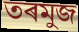
তৰমুজ